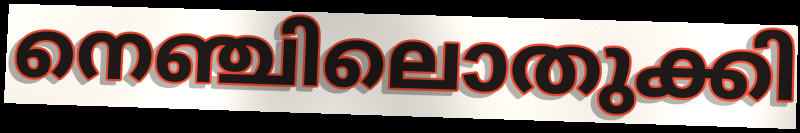
നെഞ്ചിലൊതുക്കി